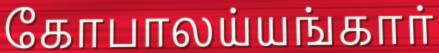
கோபாலய்யங்கார்